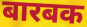
बारबक